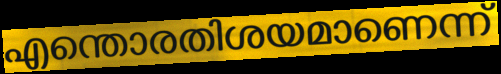
എന്തൊരതിശയമാണെന്ന്